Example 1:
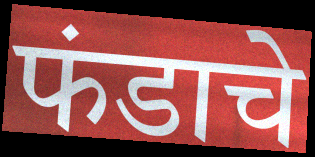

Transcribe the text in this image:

फंडाचे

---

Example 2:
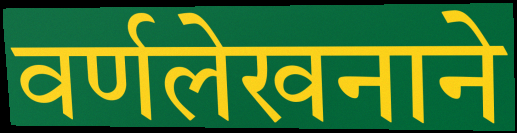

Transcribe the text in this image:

वर्णलेखनाने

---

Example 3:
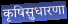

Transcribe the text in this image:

कृषिसुधारणा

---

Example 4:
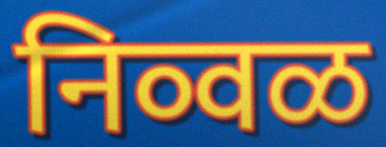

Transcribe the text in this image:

निव्‍वळ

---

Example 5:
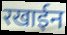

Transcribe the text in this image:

रखाईन